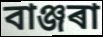
বাঞ্জৰা